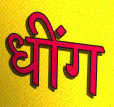
धींग